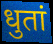
धुतां